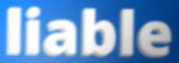
liable